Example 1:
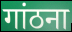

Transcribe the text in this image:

गांठना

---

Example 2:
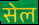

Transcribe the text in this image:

सेल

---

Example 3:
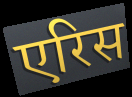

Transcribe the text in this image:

एरिस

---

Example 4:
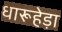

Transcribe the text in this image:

धारूहेड़ा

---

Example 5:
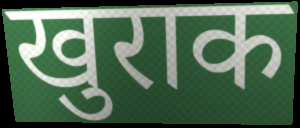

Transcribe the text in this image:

खुराक